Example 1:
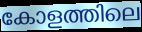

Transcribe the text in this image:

കോളത്തിലെ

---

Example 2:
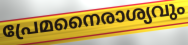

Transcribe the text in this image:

പ്രേമനൈരാശ്യവും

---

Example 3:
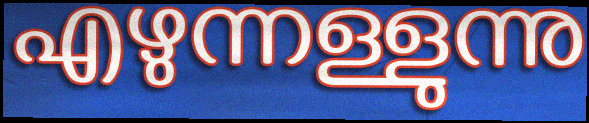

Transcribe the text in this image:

എഴുന്നള്ളുന്നു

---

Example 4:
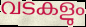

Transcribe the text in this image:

വടകളും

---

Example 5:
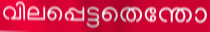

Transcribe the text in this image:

വിലപ്പെട്ടതെന്തോ